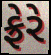
ફ્રેરે